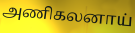
அணிகலனாய்